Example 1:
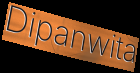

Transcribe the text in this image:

Dipanwita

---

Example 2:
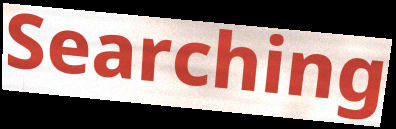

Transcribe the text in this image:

Searching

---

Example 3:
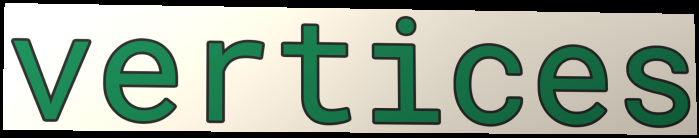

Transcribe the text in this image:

vertices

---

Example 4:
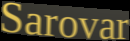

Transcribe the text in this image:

Sarovar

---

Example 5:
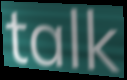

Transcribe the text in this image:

talk